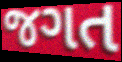
જગત